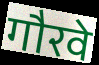
गौरवे